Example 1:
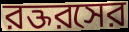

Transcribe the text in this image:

রক্তরসের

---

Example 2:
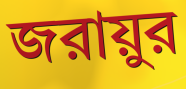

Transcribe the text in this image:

জরায়ুর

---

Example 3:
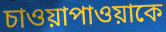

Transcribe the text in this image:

চাওয়াপাওয়াকে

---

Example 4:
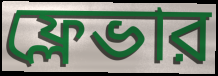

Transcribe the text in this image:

ফ্লেভার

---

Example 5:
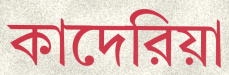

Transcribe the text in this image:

কাদেরিয়া